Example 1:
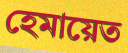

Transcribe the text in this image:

হেমায়েত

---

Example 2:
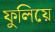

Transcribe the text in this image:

ফুলিয়ে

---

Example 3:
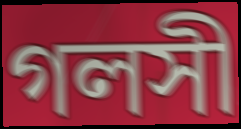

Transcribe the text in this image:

গলসী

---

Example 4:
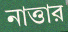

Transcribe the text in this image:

নাত্তার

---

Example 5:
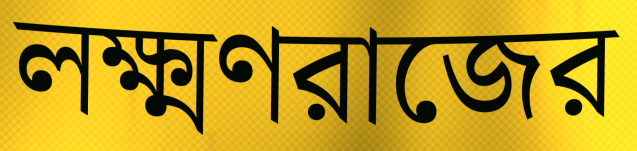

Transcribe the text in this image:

লক্ষ্মণরাজের